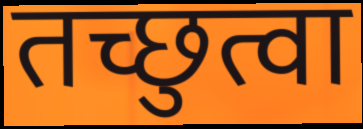
तच्छुत्वा